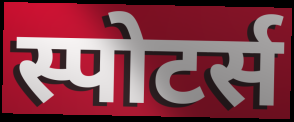
स्पोटर्स